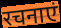
रचनाएं